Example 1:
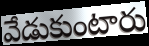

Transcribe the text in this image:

వేడుకుంటారు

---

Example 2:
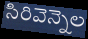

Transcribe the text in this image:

సిరివెన్నెల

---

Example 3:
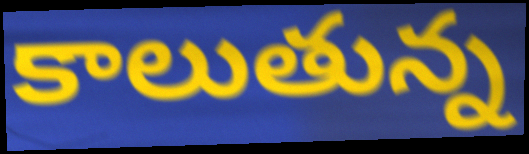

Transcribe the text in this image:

కాలుతున్న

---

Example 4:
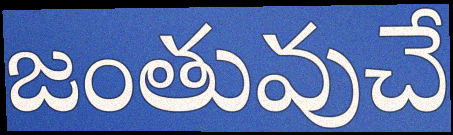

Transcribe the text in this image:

జంతువుచే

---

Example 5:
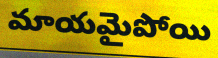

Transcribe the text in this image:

మాయమైపోయి